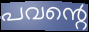
പവന്റെ